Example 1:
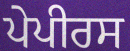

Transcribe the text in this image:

ਪੇਪੀਰਸ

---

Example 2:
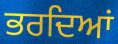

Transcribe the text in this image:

ਭਰਦਿਆਂ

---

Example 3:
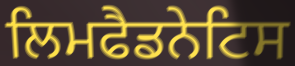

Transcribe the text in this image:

ਲਿਮਫੈਡਨੇਟਿਸ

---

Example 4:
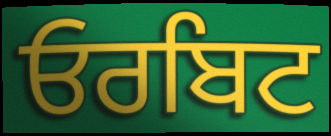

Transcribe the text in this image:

ਓਰਬਿਟ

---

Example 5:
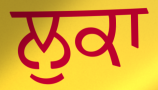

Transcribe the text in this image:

ਲੁਕਾ